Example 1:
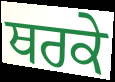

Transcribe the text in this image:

ਥਰਕੇ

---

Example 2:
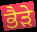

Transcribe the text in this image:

ਭੈਡ਼ੇ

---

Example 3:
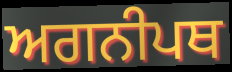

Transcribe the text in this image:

ਅਗਨੀਪਥ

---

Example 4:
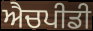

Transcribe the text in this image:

ਐਚਪੀਡੀ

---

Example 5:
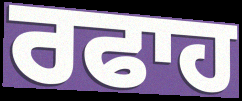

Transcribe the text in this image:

ਰਫਾਹ